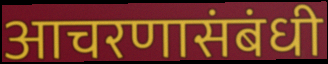
आचरणासंबंधी